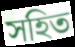
সহিত